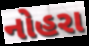
નોહરા